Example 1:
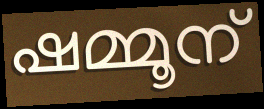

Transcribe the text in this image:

ഷമ്മൂന്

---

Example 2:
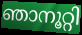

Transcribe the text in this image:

ഞാനൂറ്റി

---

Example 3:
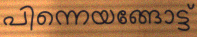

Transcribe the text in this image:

പിന്നെയങ്ങോട്ട്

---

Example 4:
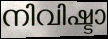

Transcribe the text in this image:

നിവിഷ്ടാ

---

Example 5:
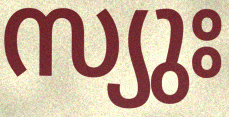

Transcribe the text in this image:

സ്യുഃ